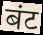
बंट